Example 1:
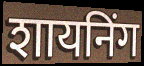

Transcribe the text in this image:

शायनिंग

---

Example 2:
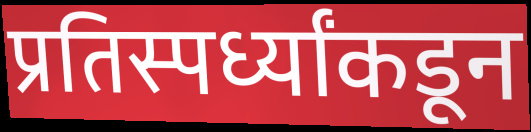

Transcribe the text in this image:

प्रतिस्पर्ध्यांकडून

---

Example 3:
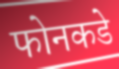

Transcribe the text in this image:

फोनकडे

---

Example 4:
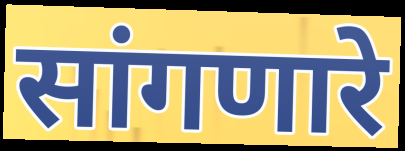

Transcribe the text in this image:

सांगणारे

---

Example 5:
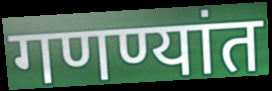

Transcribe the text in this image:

गणण्यांत